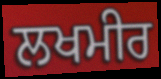
ਲਖਮੀਰ